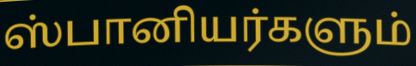
ஸ்பானியர்களும்